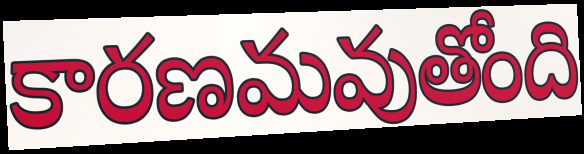
కారణమవుతోంది